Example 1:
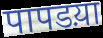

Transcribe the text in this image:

पापडय़ा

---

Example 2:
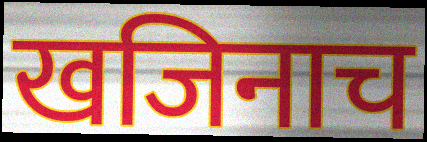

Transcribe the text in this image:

खजिनाच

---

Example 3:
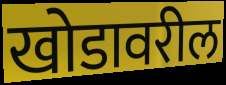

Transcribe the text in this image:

खोडावरील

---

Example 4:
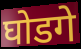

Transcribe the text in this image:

घोडगे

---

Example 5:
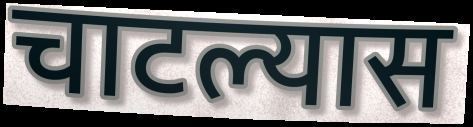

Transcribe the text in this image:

चाटल्यास